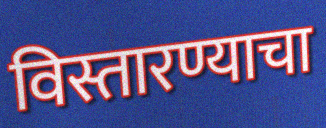
विस्तारण्याचा